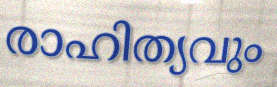
രാഹിത്യവും